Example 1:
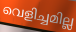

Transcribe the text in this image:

വെളിച്ചമില്ല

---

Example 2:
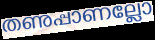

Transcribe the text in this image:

തണുപ്പാണല്ലോ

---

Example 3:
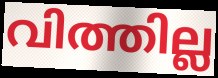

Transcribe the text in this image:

വിത്തില്ല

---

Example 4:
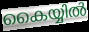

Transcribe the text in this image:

കൈയ്യിൽ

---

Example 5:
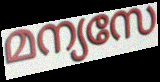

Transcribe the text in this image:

മന്യസേ